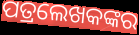
ପତ୍ରଲେଖକଙ୍କର